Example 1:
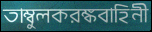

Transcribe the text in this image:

তাম্বুলকরঙ্কবাহিনী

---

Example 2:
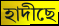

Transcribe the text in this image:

হাদীছে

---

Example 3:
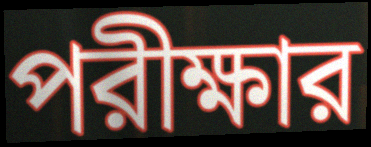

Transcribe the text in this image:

পরীক্ষার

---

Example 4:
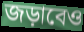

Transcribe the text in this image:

জড়াবেও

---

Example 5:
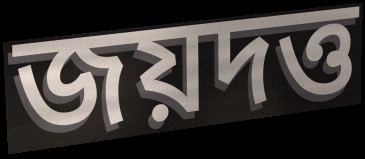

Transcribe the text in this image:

জয়দত্ত